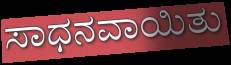
ಸಾಧನವಾಯಿತು